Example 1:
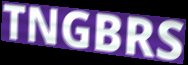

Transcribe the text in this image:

TNGBRS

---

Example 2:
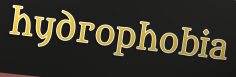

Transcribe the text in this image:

hydrophobia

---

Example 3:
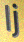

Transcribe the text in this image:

lj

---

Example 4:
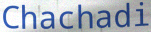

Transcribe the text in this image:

Chachadi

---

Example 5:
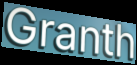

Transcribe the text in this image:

Granth